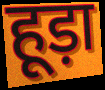
हूड़ा